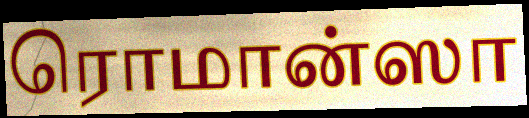
ரொமான்ஸா